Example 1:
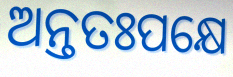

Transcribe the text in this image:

ଅନ୍ତତଃପକ୍ଷେ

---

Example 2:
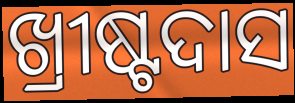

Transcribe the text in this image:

ଖ୍ରୀଷ୍ଟଦାସ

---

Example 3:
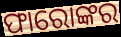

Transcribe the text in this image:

ଫାରୋଙ୍କର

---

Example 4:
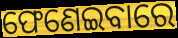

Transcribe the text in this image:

ଫେଣେଇବାରେ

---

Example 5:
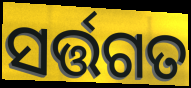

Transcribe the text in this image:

ସର୍ତ୍ତଗତ